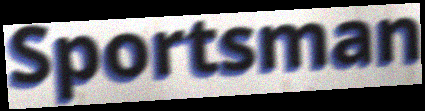
Sportsman